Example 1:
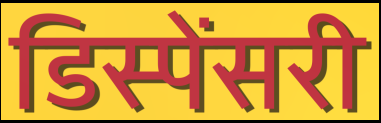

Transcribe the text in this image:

डिस्पेंसरी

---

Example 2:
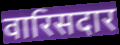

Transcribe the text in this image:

वारिसदार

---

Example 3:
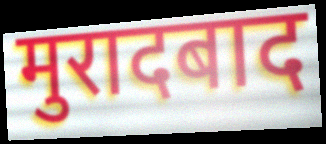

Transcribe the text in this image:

मुरादबाद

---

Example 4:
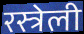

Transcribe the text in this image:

रस्त्रेली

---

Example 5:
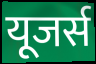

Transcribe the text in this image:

यूजर्स